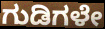
ಗುಡಿಗಳೇ